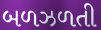
બળઝળતી